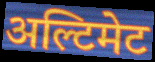
अल्टिमेट